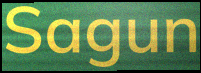
Sagun